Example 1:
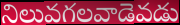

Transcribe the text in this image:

నిలువగలవాడెవడు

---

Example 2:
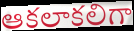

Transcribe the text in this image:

ఆకలాకలిగా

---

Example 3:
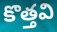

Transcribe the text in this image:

కొత్తవి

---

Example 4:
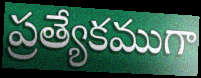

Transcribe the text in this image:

ప్రత్యేకముగా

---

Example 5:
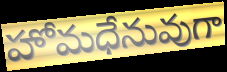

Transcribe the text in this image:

హోమధేనువుగా